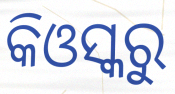
କିଓସ୍କରୁ